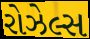
રોઝેલ્સ